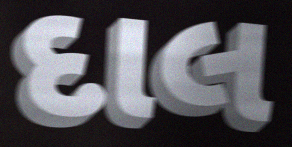
દાલ